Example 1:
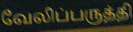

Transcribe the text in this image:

வேலிப்பருத்தி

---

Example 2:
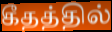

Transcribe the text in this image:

கீதத்தில்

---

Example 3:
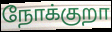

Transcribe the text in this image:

நோக்குறா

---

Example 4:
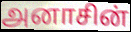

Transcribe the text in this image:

அனாசின்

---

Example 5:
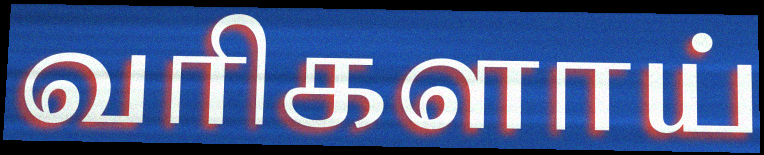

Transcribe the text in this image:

வரிகளாய்